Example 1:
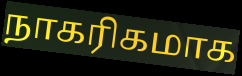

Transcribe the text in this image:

நாகரிகமாக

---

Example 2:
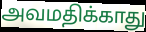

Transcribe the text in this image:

அவமதிக்காது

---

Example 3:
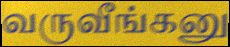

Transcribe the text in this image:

வருவீங்கனு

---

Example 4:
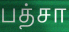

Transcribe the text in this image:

பத்சா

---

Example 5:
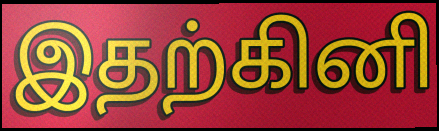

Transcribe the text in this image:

இதற்கினி